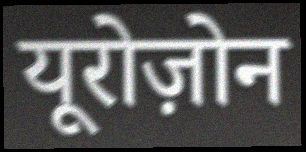
यूरोज़ोन